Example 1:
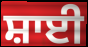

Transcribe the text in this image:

ਸ਼ਾਈ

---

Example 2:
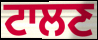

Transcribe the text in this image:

ਟਾਲਣ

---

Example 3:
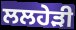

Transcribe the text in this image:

ਲਲਹੇੜੀ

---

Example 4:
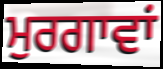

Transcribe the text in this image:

ਮੁਰਗਾਵਾਂ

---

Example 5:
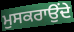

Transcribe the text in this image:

ਮੁਸਕਰਾਉਂਦੇ